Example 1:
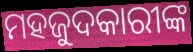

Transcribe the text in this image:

ମହଜୁଦକାରୀଙ୍କ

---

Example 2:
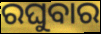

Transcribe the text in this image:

ରଘୁବାର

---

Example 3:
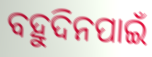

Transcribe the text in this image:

ବହୁଦିନପାଇଁ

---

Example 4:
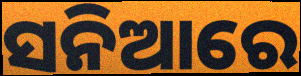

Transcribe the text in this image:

ସନିଆରେ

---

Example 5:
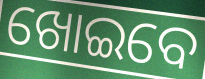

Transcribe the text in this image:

ଖୋଇବେ